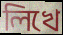
লিখে